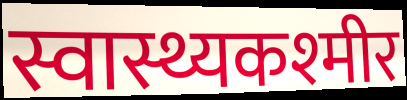
स्वास्थ्यकश्‍मीर